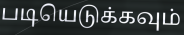
படியெடுக்கவும்